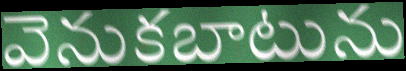
వెనుకబాటును